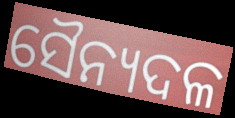
ସୈନ୍ୟଦଳ